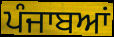
ਪੰਜਾਬਆਂ